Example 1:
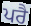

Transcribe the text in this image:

ਪਰੈ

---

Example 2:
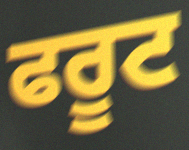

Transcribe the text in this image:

ਫਰੂਟ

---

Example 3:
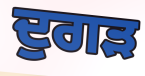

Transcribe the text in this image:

ਦੁਗੜ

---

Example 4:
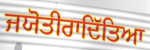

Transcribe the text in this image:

ਜਯੋਤੀਰਾਦਿੱਤਿਆ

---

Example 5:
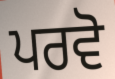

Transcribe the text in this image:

ਪਰਵੋ